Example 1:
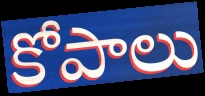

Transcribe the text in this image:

కోపాలు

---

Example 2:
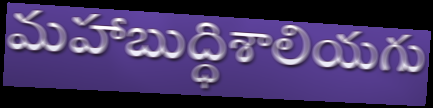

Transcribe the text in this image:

మహాబుద్ధిశాలియగు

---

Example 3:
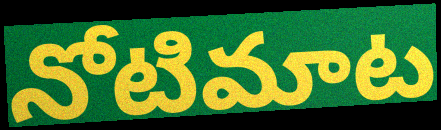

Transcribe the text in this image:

నోటిమాట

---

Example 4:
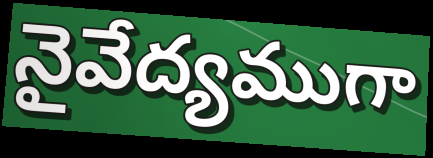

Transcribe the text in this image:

నైవేద్యముగా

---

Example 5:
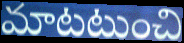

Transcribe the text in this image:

మాటటుంచి